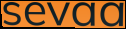
sevaa